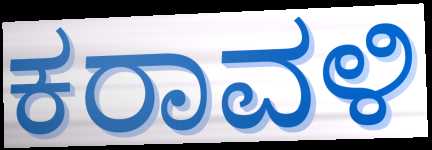
ಕರಾವಳಿ